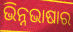
ଭିନ୍ନଭାଷାର